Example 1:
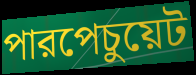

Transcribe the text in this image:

পারপেচুয়েট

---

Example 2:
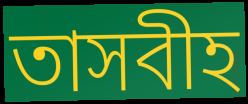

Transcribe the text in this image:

তাসবীহ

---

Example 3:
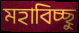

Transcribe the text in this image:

মহাবিচ্ছু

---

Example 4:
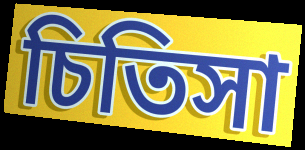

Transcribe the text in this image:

চিতিসা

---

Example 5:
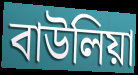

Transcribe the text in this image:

বাউলিয়া